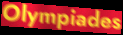
Olympiades